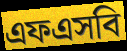
এফএসবি